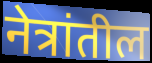
नेत्रांतील